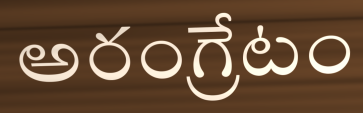
అరంగ్రేటం